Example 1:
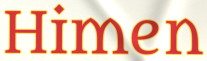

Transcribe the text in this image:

Himen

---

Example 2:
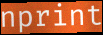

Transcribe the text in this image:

nprint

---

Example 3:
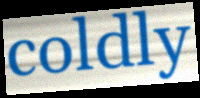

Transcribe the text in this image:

coldly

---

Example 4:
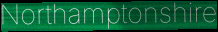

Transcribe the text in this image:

Northamptonshire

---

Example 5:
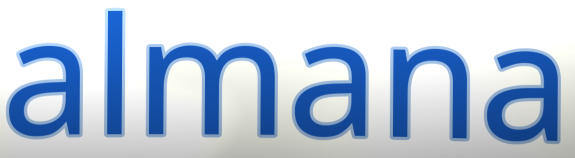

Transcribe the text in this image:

almana